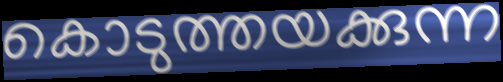
കൊടുത്തയക്കുന്ന